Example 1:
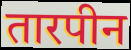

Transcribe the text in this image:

तारपीन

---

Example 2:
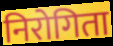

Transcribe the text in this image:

निरोगिता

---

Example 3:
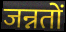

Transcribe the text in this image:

जन्नतों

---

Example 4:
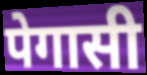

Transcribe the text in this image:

पेगासी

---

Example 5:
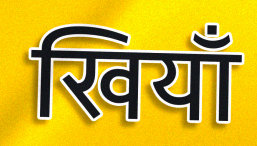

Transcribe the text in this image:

खियाँ